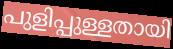
പുളിപ്പുള്ളതായി